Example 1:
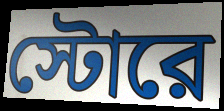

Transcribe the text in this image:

স্টোরে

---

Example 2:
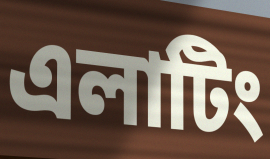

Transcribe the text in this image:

এলাটিং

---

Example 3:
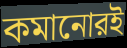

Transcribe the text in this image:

কমানোরই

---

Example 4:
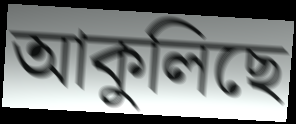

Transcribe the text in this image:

আকুলিছে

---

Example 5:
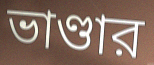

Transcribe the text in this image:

ভাণ্ডার